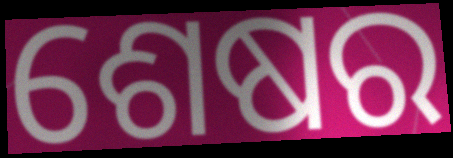
ଶେଷର